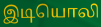
இடியொலி